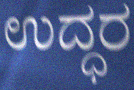
ಉದ್ಧರ